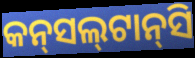
କନ୍‌ସଲ୍‌ଟାନ୍‌ସି